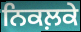
ਨਿਕਲ਼ਕੇ